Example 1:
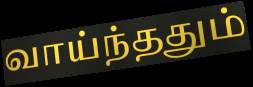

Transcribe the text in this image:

வாய்ந்ததும்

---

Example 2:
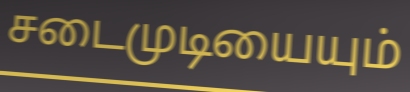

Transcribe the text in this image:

சடைமுடியையும்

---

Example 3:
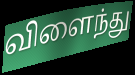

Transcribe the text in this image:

விளைந்து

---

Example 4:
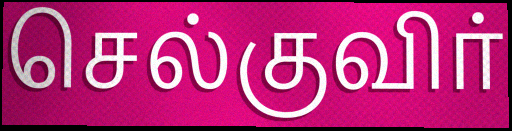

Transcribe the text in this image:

செல்குவிர்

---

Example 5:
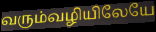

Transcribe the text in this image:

வரும்வழியிலேயே